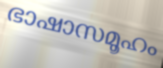
ഭാഷാസമൂഹം